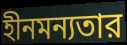
হীনমন্যতার